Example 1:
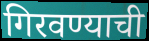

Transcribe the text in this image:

गिरवण्याची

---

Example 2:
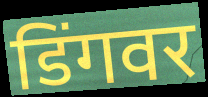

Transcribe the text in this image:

डिंगवर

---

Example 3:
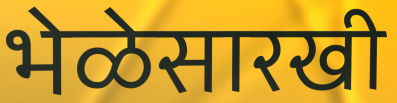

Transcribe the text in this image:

भेळेसारखी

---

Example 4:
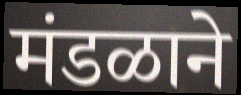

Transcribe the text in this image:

मंडळाने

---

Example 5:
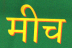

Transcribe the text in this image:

मीच